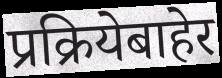
प्रक्रियेबाहेर